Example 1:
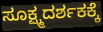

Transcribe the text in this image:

ಸೂಕ್ಷ್ಮದರ್ಶಕಕ್ಕೆ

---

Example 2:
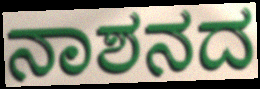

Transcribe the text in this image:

ನಾಶನದ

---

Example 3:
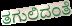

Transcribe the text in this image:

ತಗುಲಿದಂತೆ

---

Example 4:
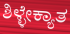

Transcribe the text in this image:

ಶಿಳ್ಳೇಕ್ಯಾತ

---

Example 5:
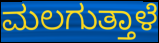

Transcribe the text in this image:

ಮಲಗುತ್ತಾಳೆ